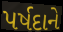
પર્ષદાને